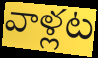
వాళ్లట